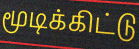
மூடிக்கிட்டு